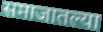
समाजातल्या